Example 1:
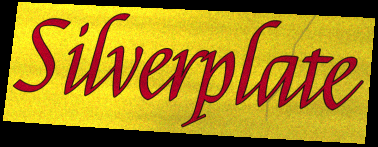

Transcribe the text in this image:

Silverplate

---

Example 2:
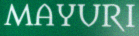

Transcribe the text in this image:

MAYURI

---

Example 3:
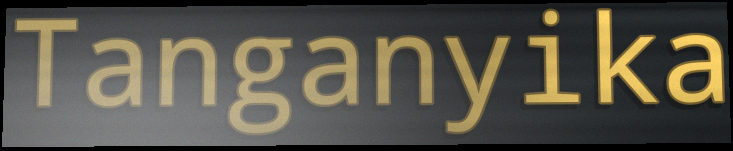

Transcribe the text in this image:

Tanganyika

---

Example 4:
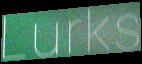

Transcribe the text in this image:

Lurks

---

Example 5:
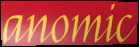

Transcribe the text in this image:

anomic